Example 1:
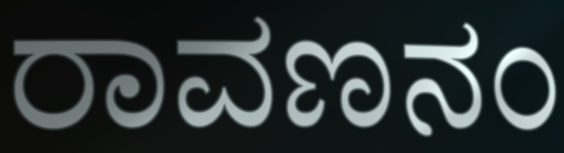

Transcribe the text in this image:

ರಾವಣನಂ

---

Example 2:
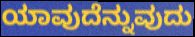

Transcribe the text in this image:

ಯಾವುದೆನ್ನುವುದು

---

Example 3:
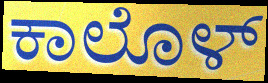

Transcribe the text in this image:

ಕಾಲೊಳ್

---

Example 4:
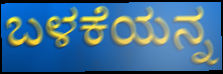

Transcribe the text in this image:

ಬಳಕೆಯನ್ನ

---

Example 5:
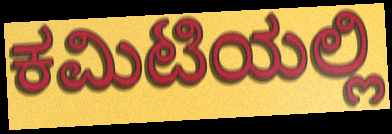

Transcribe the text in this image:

ಕಮಿಟಿಯಲ್ಲಿ